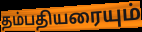
தம்பதியரையும்